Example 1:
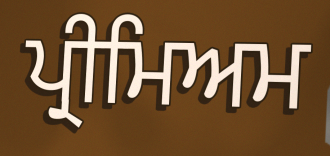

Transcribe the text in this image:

ਪ੍ਰੀਮਿਅਮ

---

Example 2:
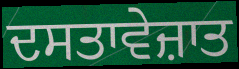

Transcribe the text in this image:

ਦਸਤਾਵੇਜ਼ਾਤ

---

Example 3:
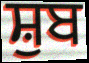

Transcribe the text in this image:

ਸ਼ੁਬ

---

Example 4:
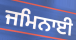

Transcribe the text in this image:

ਜਮਿਨਾਈ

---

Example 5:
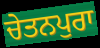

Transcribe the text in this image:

ਚੇਤਨਪੁਰਾ